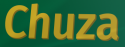
Chuza